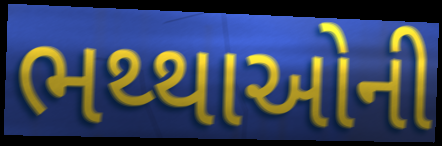
ભથ્થાઓની